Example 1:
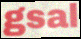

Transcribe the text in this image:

gsal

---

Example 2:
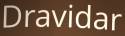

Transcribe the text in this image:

Dravidar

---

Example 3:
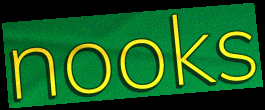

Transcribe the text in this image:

nooks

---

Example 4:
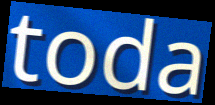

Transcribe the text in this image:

toda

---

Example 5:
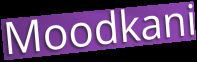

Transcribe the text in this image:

Moodkani